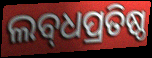
ଲବ୍‌ଧପ୍ରତିଷ୍ଠ